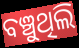
ବଞ୍ଚୁଥିଲି